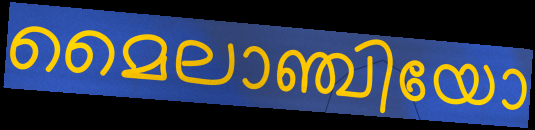
മൈലാഞ്ചിയോ